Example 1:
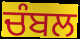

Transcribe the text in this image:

ਚੰਬਲ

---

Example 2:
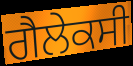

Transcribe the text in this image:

ਗੈਲੇਕਸੀ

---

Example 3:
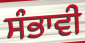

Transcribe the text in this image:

ਸੰਭਾਵੀ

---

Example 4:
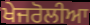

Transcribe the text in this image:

ਖੇਜਰੋਲੀਆ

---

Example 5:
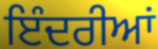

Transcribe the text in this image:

ਇੰਦਰੀਆਂ